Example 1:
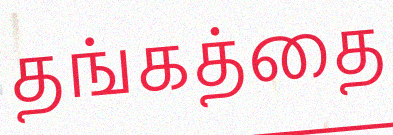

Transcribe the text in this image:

தங்கத்தை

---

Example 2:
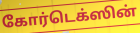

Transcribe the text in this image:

கோர்டெக்ஸின்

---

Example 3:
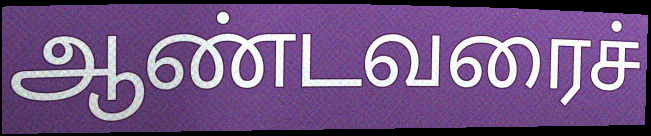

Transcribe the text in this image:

ஆண்டவரைச்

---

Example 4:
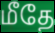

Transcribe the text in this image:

மீதே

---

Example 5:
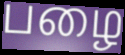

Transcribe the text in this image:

பழை